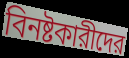
বিনষ্টকারীদের